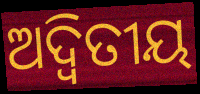
ଅଦ୍ଵିତୀୟ